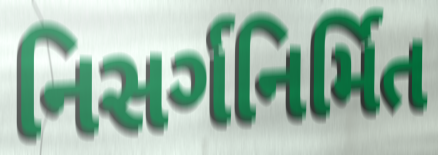
નિસર્ગનિર્મિત